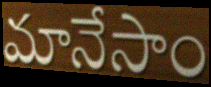
మానేసాం